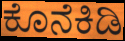
ಕೊನೆಕಿಡಿ